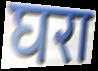
घरा